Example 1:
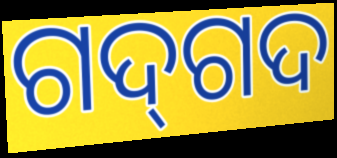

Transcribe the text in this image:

ଗଦ୍‌ଗଦ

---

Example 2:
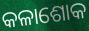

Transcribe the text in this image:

କଳାଶୋକ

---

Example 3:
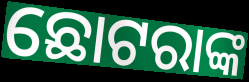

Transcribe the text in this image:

ଛୋଟରାଙ୍କ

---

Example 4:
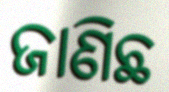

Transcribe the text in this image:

ଜାଣିଛ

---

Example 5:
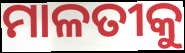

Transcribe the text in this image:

ମାଳତୀକୁ